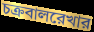
চক্রবালরেখার